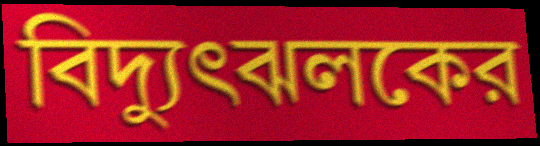
বিদ্যুৎঝলকের